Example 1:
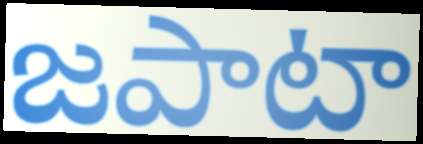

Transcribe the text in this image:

జపాటా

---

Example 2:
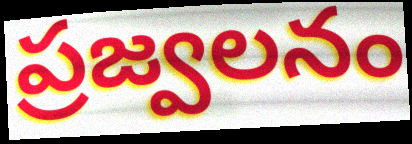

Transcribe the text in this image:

ప్రజ్వలనం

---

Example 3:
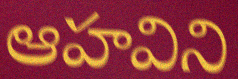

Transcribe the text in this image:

ఆహవిని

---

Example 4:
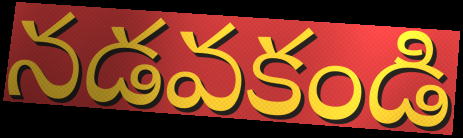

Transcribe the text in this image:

నడవకండి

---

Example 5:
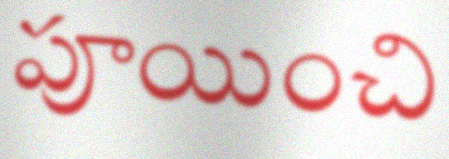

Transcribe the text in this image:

పూయించి